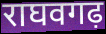
राघवगढ़